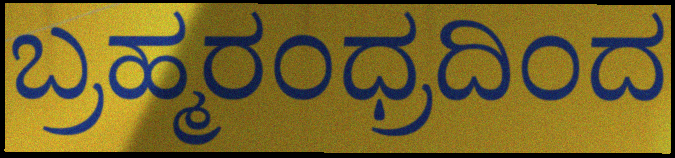
ಬ್ರಹ್ಮರಂಧ್ರದಿಂದ